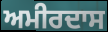
ਅਮੀਰਦਾਸ